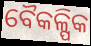
ବୈକଳ୍ପିକ